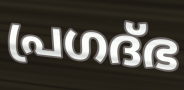
പ്രഗദ്ഭ